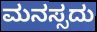
ಮನಸ್ಸದು